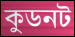
কুডনট